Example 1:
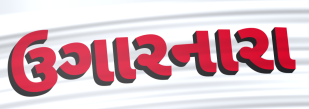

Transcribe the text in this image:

ઉગારનારા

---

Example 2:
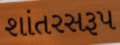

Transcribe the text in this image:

શાંતરસરૂપ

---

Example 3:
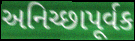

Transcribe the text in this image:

અનિચ્છાપૂર્વક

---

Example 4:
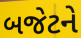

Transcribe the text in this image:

બજેટને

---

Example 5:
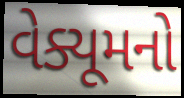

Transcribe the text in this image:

વેક્યૂમનો